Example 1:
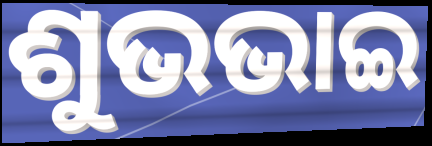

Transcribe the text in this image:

ଶୁଭଭାଇ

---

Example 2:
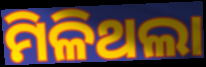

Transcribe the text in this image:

ମିଳିଥଲା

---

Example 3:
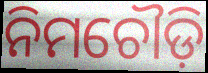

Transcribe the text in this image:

ନିମଚୌଡ଼ି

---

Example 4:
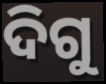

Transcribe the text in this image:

ଦିଗୁ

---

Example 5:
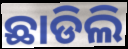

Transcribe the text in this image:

ଛାଡିଲି